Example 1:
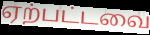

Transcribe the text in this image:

ஏற்பட்டவை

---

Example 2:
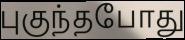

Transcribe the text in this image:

புகுந்தபோது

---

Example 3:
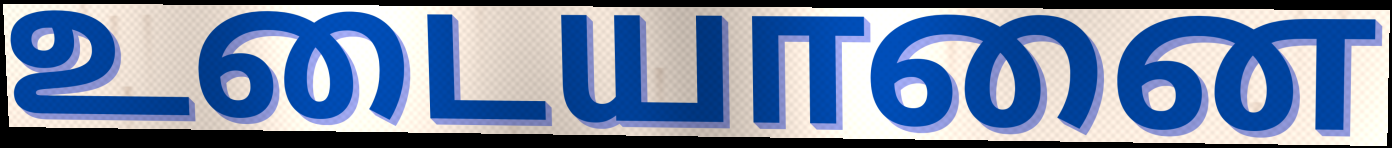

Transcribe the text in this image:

உடையானை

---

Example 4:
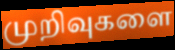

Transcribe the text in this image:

முறிவுகளை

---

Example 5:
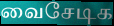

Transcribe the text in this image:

வைசேடிக